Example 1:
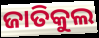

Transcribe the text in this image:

ଜାତିକୁଲ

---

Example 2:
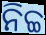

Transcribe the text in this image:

ନିଚ୍ଚ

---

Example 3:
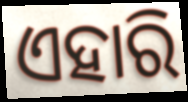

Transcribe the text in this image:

ଏହାରି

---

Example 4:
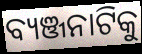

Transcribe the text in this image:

ବ୍ୟଞ୍ଜନାଟିକୁ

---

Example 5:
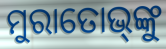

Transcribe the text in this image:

ମୁରାତୋଭ୍‌ଙ୍କୁ